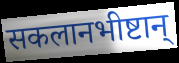
सकलानभीष्टान्